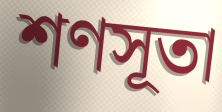
শণসূতা